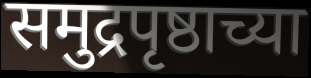
समुद्रपृष्ठाच्या